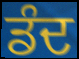
ਡੰਦ